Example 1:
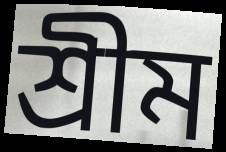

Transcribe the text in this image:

শ্রীম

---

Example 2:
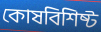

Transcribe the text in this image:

কোষবিশিষ্ট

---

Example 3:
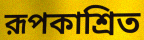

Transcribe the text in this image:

রূপকাশ্রিত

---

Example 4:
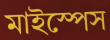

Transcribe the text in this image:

মাইস্পেস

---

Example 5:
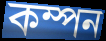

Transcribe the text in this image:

কম্পন